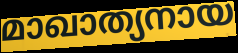
മാഖാത്യനായ